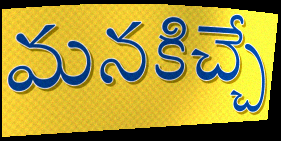
మనకిచ్చే